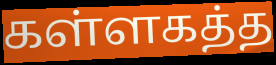
கள்ளகத்த